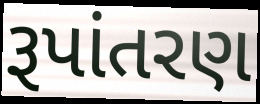
રૂપાંતરણ